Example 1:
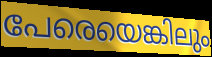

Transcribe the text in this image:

പേരെയെങ്കിലും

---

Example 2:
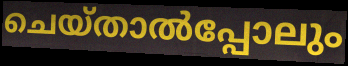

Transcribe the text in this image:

ചെയ്താൽപ്പോലും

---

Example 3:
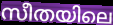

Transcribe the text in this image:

സീതയിലെ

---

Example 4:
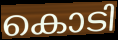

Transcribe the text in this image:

കൊടി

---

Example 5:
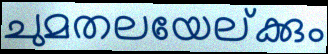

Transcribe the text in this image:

ചുമതലയേല്ക്കും